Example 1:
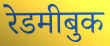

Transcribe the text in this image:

रेडमीबुक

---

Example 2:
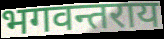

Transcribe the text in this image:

भगवन्तराय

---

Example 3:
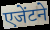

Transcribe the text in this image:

एजेंटने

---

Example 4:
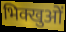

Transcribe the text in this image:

भिक्खुओं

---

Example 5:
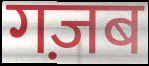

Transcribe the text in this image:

गज़ब